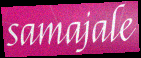
samajale